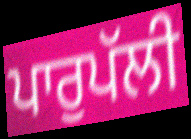
ਪਾਰੁਪੱਲੀ